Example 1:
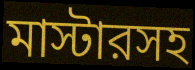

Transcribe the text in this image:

মাস্টারসহ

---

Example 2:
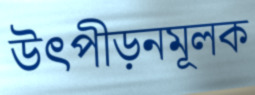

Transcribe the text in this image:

উৎপীড়নমূলক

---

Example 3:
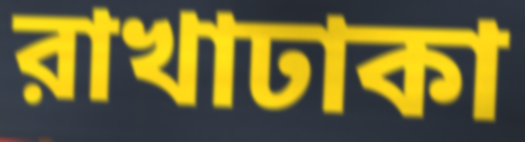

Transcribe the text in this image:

রাখাঢাকা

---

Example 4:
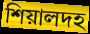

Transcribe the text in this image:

শিয়ালদহ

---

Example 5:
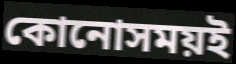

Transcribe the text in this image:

কোনোসময়ই